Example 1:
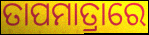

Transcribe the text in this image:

ତାପମାତ୍ରାରେ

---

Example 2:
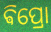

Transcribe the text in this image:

ଵିପ୍ରୋ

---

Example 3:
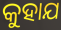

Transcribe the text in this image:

କୁହାଯ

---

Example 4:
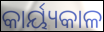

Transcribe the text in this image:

କାର୍ୟ୍ୟକାଳ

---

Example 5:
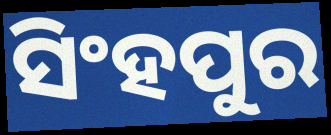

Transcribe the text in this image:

ସିଂହପୁର